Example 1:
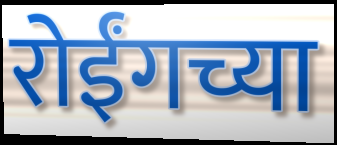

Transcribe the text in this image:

रोईंगच्या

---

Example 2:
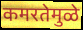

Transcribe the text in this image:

कमरतेमुळे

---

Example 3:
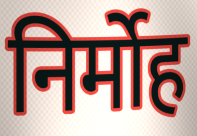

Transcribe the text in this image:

निर्मोह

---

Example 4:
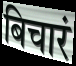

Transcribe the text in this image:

बिचारं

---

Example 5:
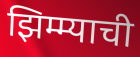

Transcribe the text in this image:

झिम्म्याची